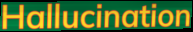
Hallucination